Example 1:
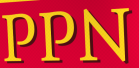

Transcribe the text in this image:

PPN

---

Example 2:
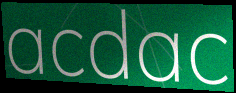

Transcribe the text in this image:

acdac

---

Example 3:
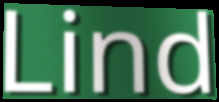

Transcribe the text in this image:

Lind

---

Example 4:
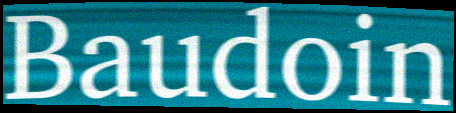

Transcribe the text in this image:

Baudoin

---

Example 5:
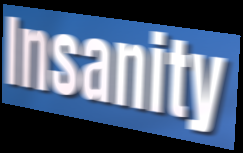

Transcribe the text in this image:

Insanity